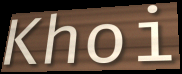
Khoi